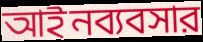
আইনব্যবসার